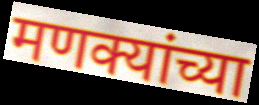
मणक्यांच्या